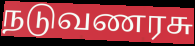
நடுவணரசு